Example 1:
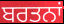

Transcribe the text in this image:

ਬਰਤਨਾਂ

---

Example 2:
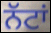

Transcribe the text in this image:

ਨੱਟਾਂ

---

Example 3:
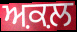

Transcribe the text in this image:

ਅ਼ਕ਼ਲ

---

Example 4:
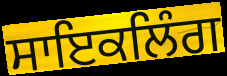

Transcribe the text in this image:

ਸਾਇਕਲਿੰਗ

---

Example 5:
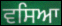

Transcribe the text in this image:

ਵਸਿਆ